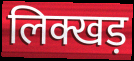
लिक्खड़